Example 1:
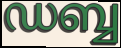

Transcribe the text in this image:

ഡബ്ബ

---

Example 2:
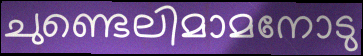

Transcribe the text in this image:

ചുണ്ടെലിമാമനോടു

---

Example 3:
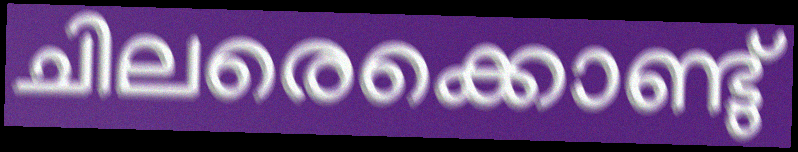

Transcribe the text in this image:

ചിലരെക്കൊണ്ടു്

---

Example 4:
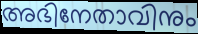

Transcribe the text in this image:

അഭിനേതാവിനും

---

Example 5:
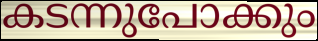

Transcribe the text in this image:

കടന്നുപോക്കും